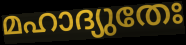
മഹാദ്യുതേഃ